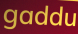
gaddu